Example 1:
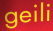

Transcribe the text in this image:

geili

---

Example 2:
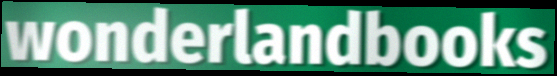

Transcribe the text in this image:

wonderlandbooks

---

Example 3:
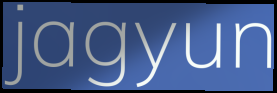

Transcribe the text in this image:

jagyun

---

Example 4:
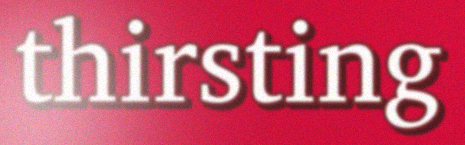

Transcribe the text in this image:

thirsting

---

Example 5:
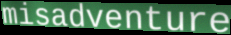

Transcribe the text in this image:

misadventure